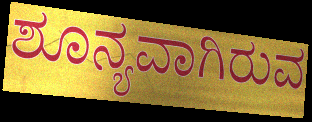
ಶೂನ್ಯವಾಗಿರುವ